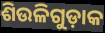
ଶିଉଳିଗୁଡ଼ାକ